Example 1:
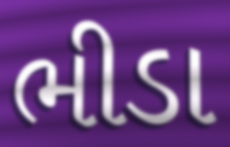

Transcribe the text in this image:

ભીડા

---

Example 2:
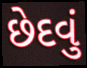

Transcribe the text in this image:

છેદવું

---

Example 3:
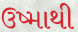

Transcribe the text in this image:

ઉષ્માથી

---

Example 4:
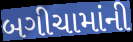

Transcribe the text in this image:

બગીચામાંની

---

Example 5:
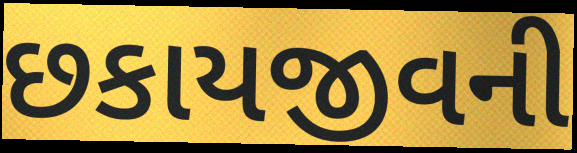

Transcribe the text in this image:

છકાયજીવની